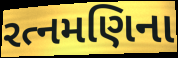
રત્નમણિના